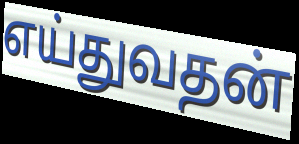
எய்துவதன்